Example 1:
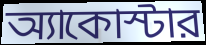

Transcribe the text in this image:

অ্যাকোস্টার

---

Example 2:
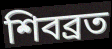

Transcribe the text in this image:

শিবব্রত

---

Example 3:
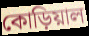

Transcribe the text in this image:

কোড়িয়াল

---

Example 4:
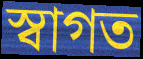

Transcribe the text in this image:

স্বাগত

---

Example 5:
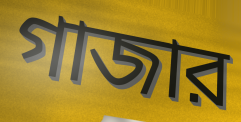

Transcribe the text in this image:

গাজার